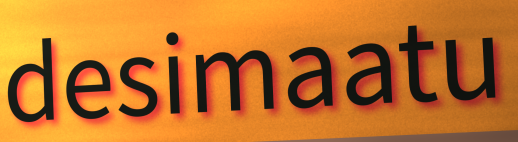
desimaatu